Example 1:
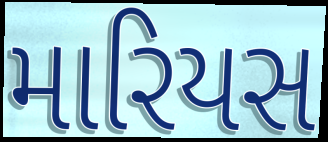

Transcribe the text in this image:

મારિયસ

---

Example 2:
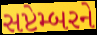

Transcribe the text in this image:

સપ્ટેમ્બરને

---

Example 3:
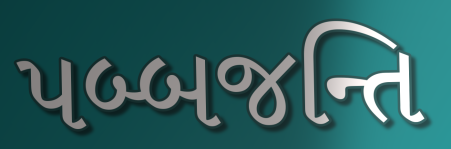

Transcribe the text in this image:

પબ્બજન્તિ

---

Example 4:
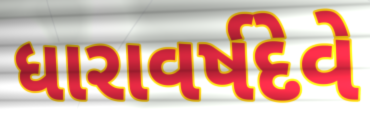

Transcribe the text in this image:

ધારાવર્ષદેવે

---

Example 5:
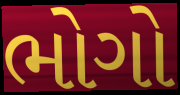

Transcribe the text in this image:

ભોગો